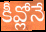
కీవ్లోనే